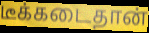
டீக்கடைதான்